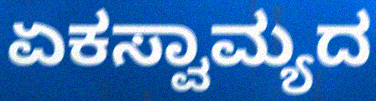
ಏಕಸ್ವಾಮ್ಯದ